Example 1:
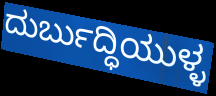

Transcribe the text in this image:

ದುರ್ಬುದ್ಧಿಯುಳ್ಳ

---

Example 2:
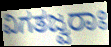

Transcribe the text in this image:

ವಿಗತಜ್ವರಾಃ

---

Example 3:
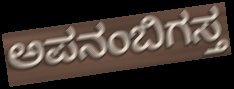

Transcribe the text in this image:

ಅಪನಂಬಿಗಸ್ತ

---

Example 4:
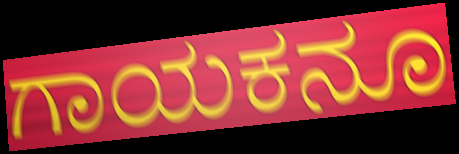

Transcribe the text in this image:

ಗಾಯಕನೂ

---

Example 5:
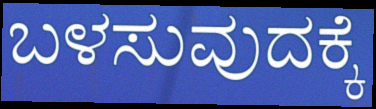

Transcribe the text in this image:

ಬಳಸುವುದಕ್ಕೆ